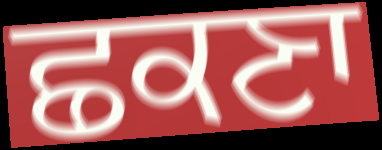
ਛਕਣਾ